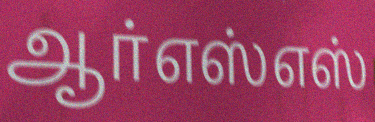
ஆர்எஸ்எஸ்